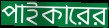
পাইকারের